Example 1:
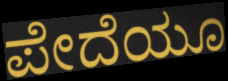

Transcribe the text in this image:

ಪೇದೆಯೂ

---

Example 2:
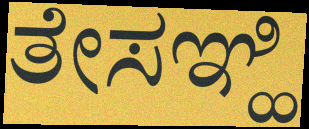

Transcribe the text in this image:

ತೇಸಞ್ಹಿ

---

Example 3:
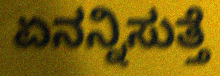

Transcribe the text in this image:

ಏನನ್ನಿಸುತ್ತೆ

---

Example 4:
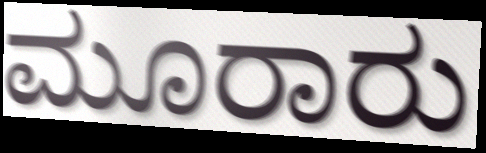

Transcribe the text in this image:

ಮೂರಾರು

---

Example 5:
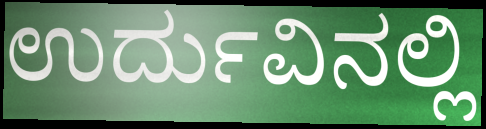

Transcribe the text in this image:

ಉರ್ದುವಿನಲ್ಲಿ